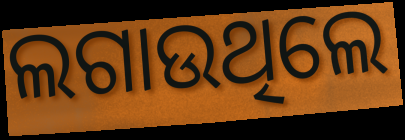
ଲଗାଉଥିଲେ